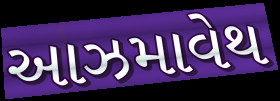
આઝમાવેથ